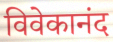
विवेकानंद